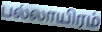
பல்லாயிரம்